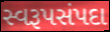
સ્વરૂપસંપદા